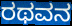
ರಥವನ